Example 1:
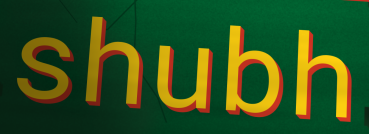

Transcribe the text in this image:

shubh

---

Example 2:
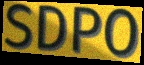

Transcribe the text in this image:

SDPO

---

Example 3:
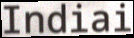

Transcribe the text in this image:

Indiai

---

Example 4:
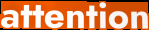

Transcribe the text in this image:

attention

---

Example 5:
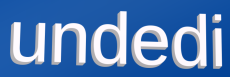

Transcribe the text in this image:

undedi